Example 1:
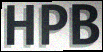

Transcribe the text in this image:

HPB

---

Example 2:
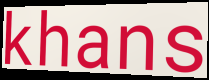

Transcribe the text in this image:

khans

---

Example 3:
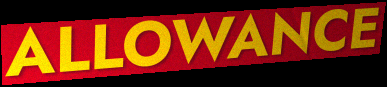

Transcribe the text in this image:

ALLOWANCE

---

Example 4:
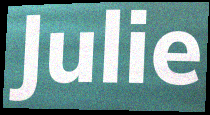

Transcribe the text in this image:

Julie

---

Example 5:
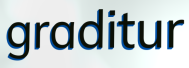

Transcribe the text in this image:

graditur